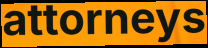
attorneys